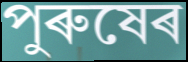
পুৰুষেৰ